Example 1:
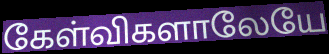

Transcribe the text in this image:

கேள்விகளாலேயே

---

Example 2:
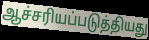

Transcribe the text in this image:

ஆச்சரியப்படுத்தியது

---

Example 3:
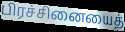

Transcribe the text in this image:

பிரச்சினையைத்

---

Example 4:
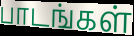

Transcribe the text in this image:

பாடங்கள்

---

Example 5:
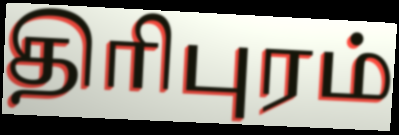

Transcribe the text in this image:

திரிபுரம்